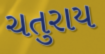
ચતુરાય